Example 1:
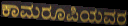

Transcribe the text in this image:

ಕಾಮರೂಪಿಯವರ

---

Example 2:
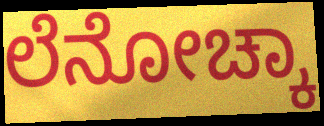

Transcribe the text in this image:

ಲೆನೋಚ್ಕಾ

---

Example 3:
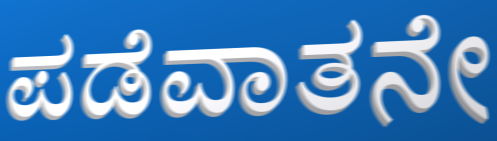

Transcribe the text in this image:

ಪಡೆವಾತನೇ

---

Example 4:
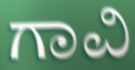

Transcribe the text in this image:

ಗಾವಿ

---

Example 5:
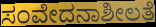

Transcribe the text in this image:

ಸಂವೇದನಾಶೀಲತೆ